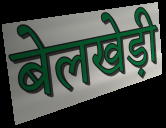
बेलखेड़ी